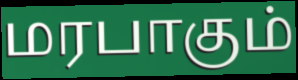
மரபாகும்